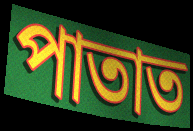
পাতাত